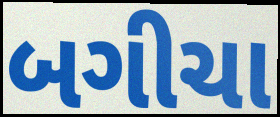
બગીચા